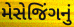
મેસેજિંગનું